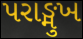
પરાઙ્મુખ